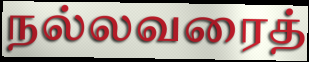
நல்லவரைத்